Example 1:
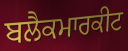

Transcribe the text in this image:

ਬਲੈਕਮਾਰਕੀਟ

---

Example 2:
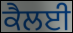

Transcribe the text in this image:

ਕੈਲਈ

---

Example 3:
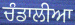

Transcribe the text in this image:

ਚੰਡਾਲੀਆ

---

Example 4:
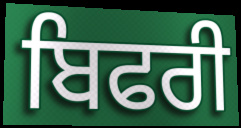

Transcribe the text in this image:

ਬਿਫਰੀ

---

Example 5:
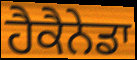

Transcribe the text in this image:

ਹੈਕੈਨੇਡਾ